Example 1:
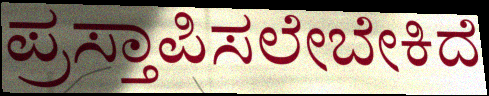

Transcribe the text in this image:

ಪ್ರಸ್ತಾಪಿಸಲೇಬೇಕಿದೆ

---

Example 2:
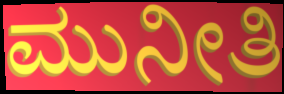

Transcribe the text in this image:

ಮುನೀತಿ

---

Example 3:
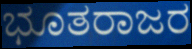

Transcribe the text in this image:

ಭೂತರಾಜರ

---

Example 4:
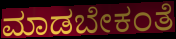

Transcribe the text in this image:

ಮಾಡಬೇಕಂತೆ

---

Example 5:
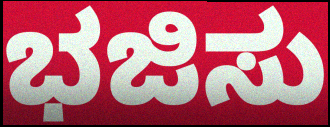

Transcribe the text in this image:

ಭಜಿಸು